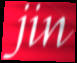
jin